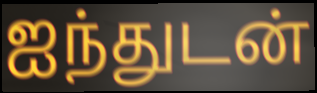
ஐந்துடன்